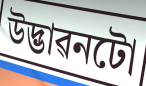
উদ্ভাৱনটো